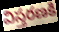
విస్తరణకి